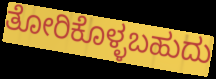
ತೋರಿಕೊಳ್ಳಬಹುದು